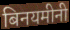
बिनयमीनी